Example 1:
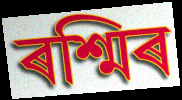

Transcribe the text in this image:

ৰশ্মিৰ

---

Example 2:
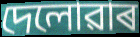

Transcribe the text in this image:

দেলোৱাৰ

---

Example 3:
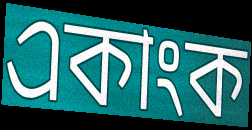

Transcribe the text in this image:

একাংক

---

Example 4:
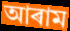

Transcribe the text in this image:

আৰাম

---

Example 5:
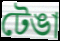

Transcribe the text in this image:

টেঙা